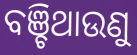
ବଞ୍ଚିଥାଉଣୁ